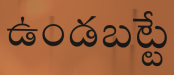
ఉండబట్టే